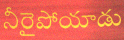
నీరైపోయాడు